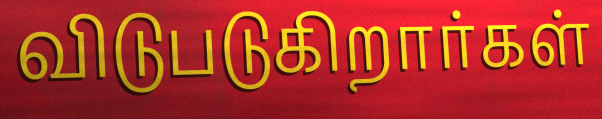
விடுபடுகிறார்கள்